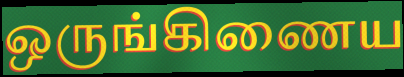
ஒருங்கிணைய